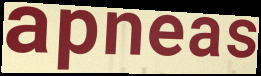
apneas